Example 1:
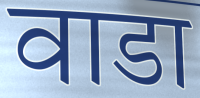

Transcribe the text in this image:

वाडा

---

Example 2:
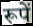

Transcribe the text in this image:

रूपें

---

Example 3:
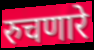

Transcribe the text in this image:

रुचणारे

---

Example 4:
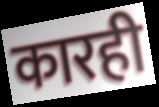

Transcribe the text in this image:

कारही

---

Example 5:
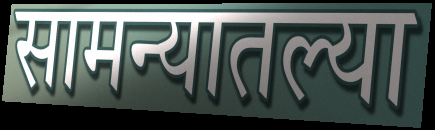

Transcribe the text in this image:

सामन्यातल्या